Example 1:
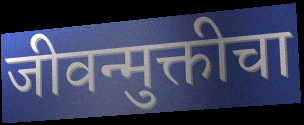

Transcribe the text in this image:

जीवन्मुक्तीचा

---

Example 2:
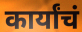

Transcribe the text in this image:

कार्यांचं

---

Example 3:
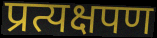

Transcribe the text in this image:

प्रत्यक्षपण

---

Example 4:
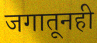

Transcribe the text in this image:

जगातूनही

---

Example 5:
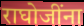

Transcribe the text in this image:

राघोजींना